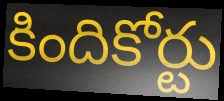
కిందికోర్టు